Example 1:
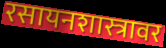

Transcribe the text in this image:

रसायनशास्त्रावर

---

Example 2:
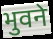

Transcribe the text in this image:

भुवने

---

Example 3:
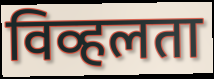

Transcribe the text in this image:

विव्हलता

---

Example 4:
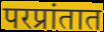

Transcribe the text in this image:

परप्रांतात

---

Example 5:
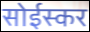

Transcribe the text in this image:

सोईस्कर